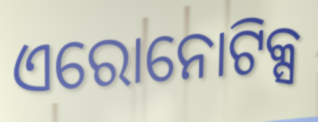
ଏରୋନୋଟିକ୍ସ